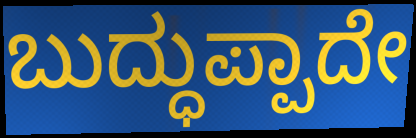
ಬುದ್ಧುಪ್ಪಾದೇ